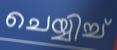
ചെയ്യിച്ച്